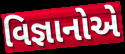
વિજ્ઞાનોએ